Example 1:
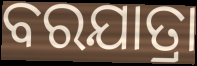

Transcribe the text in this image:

ବରଯାତ୍ରା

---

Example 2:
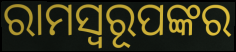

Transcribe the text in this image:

ରାମସ୍ୱରୂପଙ୍କର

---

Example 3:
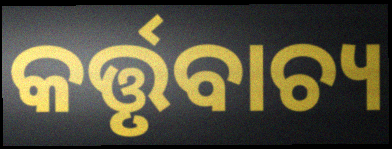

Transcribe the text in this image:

କର୍ତ୍ତୃବାଚ୍ୟ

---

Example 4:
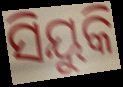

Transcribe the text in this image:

ସିୟୁକି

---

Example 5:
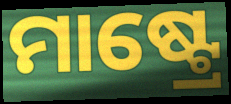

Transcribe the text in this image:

ମାଷ୍ଟ୍ରେ